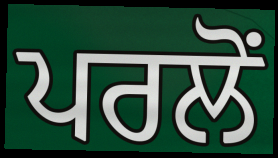
ਪਰਲੋਂ